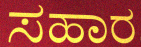
ಸಹಾರ